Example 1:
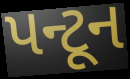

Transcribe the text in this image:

પન્ટૂન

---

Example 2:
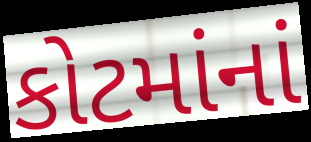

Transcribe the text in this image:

કોટમાંનાં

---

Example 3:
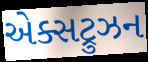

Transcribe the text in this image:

એક્સટ્રુઝન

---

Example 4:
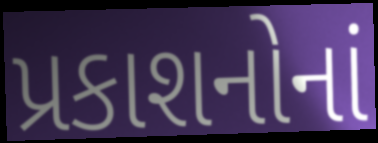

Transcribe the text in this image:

પ્રકાશનોનાં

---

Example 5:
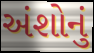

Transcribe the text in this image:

અંશોનું